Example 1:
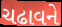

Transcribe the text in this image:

ચઢાવને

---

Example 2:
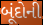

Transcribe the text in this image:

બૂંદોની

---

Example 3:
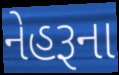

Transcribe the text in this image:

નેહરૂના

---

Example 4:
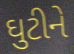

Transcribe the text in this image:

ઘુટીને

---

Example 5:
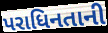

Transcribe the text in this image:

પરાધિનતાની